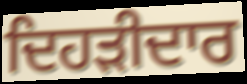
ਦਿਹੜੀਦਾਰ